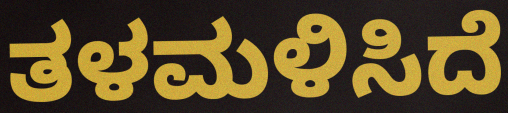
ತಳಮಳಿಸಿದೆ